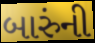
બારુંની